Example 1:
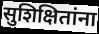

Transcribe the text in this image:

सुशिक्षितांना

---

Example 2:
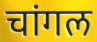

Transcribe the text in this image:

चांगल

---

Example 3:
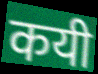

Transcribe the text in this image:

कयी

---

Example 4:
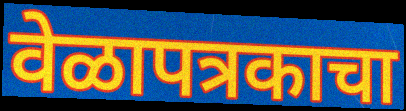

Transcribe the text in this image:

वेळापत्रकाचा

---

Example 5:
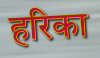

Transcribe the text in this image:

हरिका